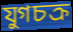
যুগচক্র